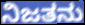
ನಿಜತನು